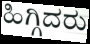
ಹಿಗ್ಗಿದರು